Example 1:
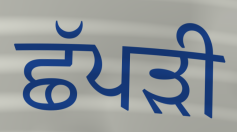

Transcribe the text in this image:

ਛੱਪੜੀ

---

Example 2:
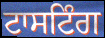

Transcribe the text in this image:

ਟਾਸਟਿੰਗ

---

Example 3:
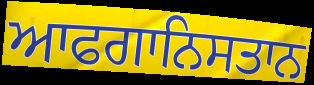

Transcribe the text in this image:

ਆਫਗਾਨਿਸਤਾਨ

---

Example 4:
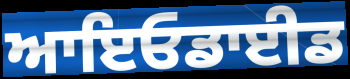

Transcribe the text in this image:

ਆਇਓਡਾਈਡ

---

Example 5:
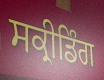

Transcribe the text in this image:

ਸਕ੍ਰੀਡਿੰਗ